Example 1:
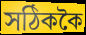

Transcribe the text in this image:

সঠিককৈ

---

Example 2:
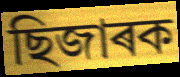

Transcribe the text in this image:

ছিজাৰক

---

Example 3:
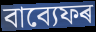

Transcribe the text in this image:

বাব্যেফৰ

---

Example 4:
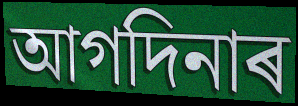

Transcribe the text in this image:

আগদিনাৰ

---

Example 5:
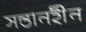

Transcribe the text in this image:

সন্তানহীন